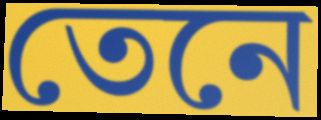
তেনে